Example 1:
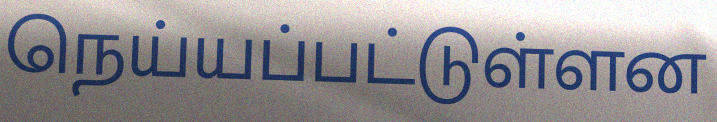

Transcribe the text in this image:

நெய்யப்பட்டுள்ளன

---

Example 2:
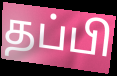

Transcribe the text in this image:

தப்பி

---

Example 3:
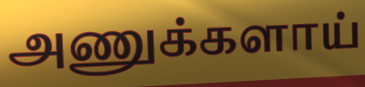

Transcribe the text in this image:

அணுக்களாய்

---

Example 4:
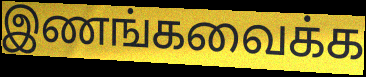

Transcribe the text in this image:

இணங்கவைக்க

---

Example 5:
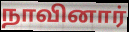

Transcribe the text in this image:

நாவினார்